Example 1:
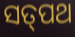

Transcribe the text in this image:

ସତ୍‌ପଥ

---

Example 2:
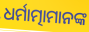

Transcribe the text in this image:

ଧର୍ମାତ୍ମାମାନଙ୍କ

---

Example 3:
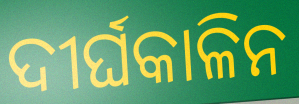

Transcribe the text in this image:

ଦୀର୍ଘକାଳିନ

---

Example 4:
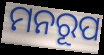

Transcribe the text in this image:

ମନରୂପ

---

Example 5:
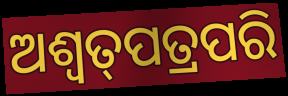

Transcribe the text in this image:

ଅଶ୍ଵତ୍‌ପତ୍ରପରି